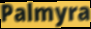
Palmyra